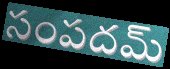
సంపదమ్